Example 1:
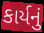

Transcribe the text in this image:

કાર્યનું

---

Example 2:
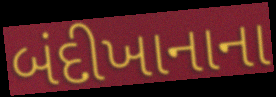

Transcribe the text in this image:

બંદીખાનાના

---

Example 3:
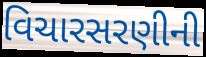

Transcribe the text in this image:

વિચારસરણીની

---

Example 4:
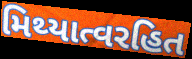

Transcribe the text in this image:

મિથ્યાત્વરહિત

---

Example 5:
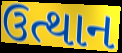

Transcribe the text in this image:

ઉત્થાન